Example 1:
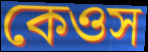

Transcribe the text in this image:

কেওস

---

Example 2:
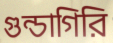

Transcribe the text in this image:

গুন্ডাগিরি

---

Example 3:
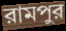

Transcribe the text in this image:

রামপুর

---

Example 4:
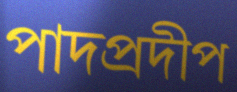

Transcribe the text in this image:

পাদপ্রদীপ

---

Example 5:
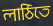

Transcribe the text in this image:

লাঠিতে